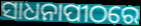
ସାଧନାପୀଠରେ